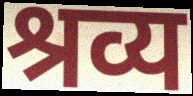
श्रव्य